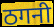
ठगनी